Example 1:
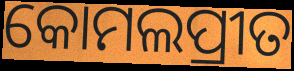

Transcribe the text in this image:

କୋମଲପ୍ରୀତ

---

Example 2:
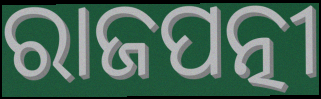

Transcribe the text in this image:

ରାଜପତ୍ନୀ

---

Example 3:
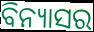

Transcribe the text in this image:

ବିନ୍ୟାସର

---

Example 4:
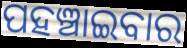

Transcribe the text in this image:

ପହଞ୍ଚାଇବାର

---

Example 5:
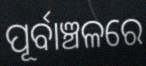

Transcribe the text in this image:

ପୂର୍ବାଞ୍ଚଳରେ